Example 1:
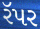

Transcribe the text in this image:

રૅપર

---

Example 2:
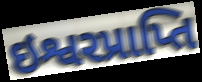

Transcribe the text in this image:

ઇશ્વરપ્રાપ્તિ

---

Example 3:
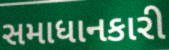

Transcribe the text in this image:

સમાધાનકારી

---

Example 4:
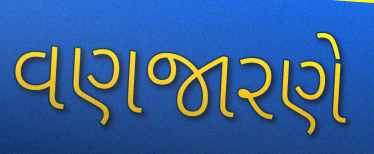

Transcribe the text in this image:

વણજારણે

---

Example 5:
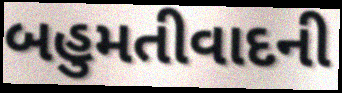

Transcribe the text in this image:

બહુમતીવાદની